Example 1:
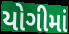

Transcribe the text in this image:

યોગીમાં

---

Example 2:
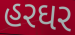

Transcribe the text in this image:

હરઘર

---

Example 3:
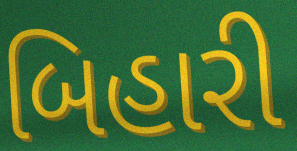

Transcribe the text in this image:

બિહારી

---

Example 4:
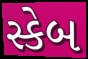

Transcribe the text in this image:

સ્કેબ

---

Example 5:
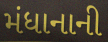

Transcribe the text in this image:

મંધાનાની